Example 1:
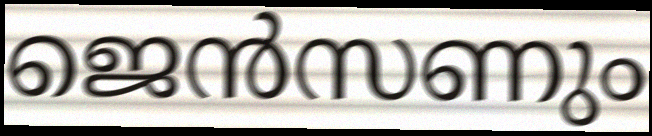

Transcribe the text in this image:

ജെൻസണും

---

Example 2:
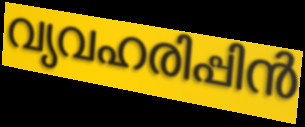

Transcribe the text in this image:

വ്യവഹരിപ്പിൻ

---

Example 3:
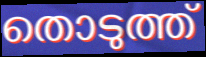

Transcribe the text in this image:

തൊടുത്ത്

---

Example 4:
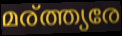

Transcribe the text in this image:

മര്ത്ത്യരേ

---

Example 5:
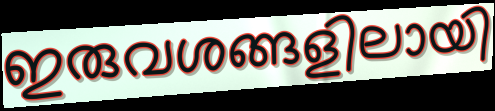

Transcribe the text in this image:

ഇരുവശങ്ങളിലായി